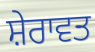
ਸ਼ੇਰਾਵਤ